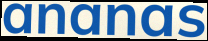
ananas